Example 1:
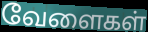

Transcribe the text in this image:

வேளைகள்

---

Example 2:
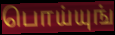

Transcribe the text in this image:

பொய்யுங்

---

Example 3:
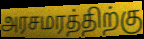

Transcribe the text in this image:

அரசமரத்திற்கு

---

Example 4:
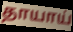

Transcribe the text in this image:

தாயாய்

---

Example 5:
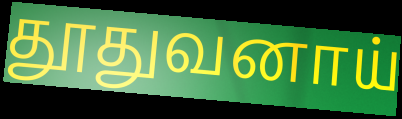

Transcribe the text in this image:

தூதுவனாய்